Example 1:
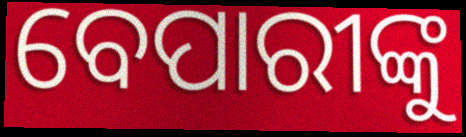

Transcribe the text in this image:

ବେପାରୀଙ୍କୁ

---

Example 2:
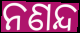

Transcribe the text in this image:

ନଣନ୍ଦ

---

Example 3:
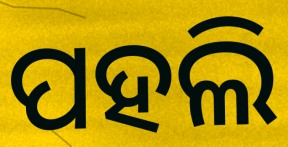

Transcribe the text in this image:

ପହଲି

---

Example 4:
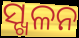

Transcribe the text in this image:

ସ୍ଖଳନ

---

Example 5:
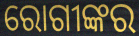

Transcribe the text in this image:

ରୋଗୀଙ୍କର